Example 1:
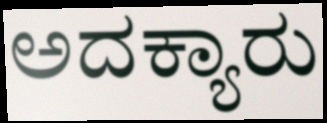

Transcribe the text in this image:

ಅದಕ್ಯಾರು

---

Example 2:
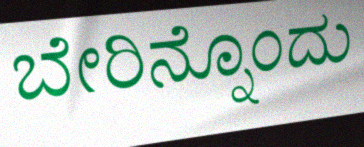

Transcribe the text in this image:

ಬೇರಿನ್ನೊಂದು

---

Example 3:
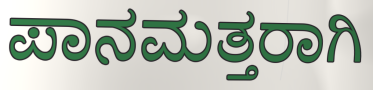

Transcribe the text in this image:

ಪಾನಮತ್ತರಾಗಿ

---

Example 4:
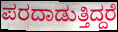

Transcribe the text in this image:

ಪರದಾಡುತ್ತಿದ್ದರೆ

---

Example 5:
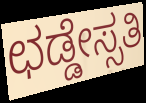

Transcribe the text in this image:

ಛಡ್ಡೇಸ್ಸತಿ